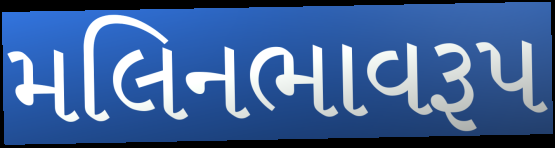
મલિનભાવરૂપ